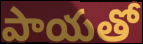
పాయతో